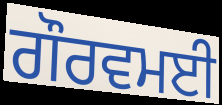
ਗੌਰਵਮਈ